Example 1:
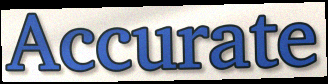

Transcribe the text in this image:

Accurate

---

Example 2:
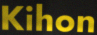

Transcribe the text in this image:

Kihon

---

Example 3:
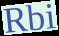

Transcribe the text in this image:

Rbi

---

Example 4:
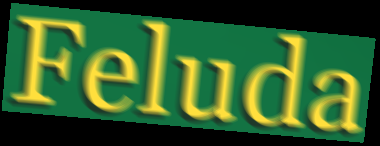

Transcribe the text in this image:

Feluda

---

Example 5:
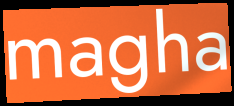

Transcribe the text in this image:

magha